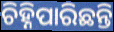
ଚିହ୍ନିପାରିଛନ୍ତି